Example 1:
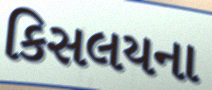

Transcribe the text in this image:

કિસલયના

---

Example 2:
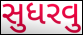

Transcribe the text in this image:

સુધરવુ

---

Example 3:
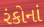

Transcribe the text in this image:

રંકોનાં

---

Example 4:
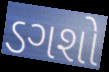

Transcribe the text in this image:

ડગશો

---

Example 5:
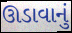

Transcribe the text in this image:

ઊડાવાનું